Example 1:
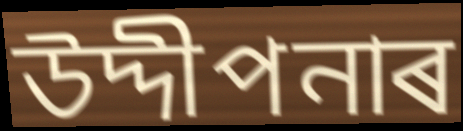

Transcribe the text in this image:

উদ্দীপনাৰ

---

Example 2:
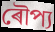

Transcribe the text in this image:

ৰৌপ্য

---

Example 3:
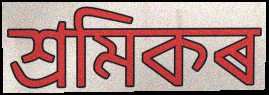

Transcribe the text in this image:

শ্ৰমিকৰ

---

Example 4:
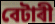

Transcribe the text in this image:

বেটাৰী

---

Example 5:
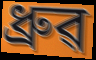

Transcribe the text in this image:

ধ্ৰুৱ